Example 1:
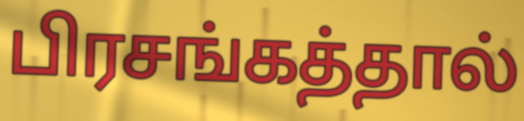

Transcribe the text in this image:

பிரசங்கத்தால்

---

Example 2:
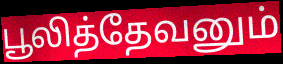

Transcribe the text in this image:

பூலித்தேவனும்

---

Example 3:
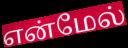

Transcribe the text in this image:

என்மேல்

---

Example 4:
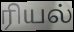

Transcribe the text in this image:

ரியல்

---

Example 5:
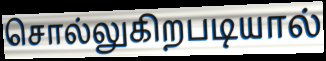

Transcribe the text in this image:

சொல்லுகிறபடியால்